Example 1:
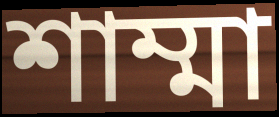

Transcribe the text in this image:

শাম্মা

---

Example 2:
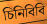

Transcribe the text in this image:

চিনিবিবি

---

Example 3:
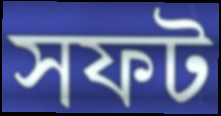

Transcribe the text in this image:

সফট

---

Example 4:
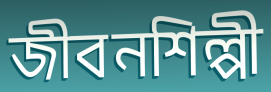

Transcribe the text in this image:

জীবনশিল্পী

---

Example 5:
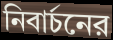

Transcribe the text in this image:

নিবার্চনের